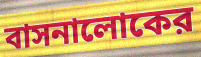
বাসনালোকের